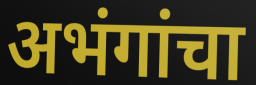
अभंगांचा